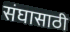
संघासाठी